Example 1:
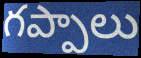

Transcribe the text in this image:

గప్పాలు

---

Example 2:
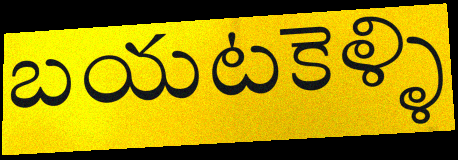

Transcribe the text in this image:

బయటకెళ్ళి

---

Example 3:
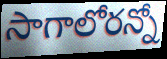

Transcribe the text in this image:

సాగాలోరన్నో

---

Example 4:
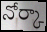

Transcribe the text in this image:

నోర్కా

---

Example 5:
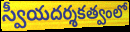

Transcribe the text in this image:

స్వీయదర్శకత్వంలో